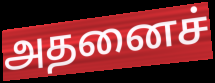
அதனைச்